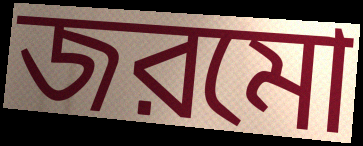
জরমো